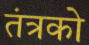
तंत्रको